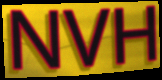
NVH